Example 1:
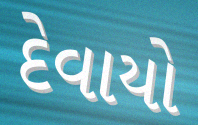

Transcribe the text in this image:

દેવાયો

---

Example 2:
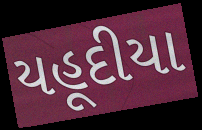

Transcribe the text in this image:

યહૂદીયા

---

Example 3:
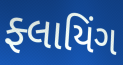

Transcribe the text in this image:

ફ્લાયિંગ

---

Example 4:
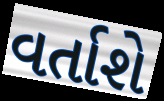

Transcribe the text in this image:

વર્તાશે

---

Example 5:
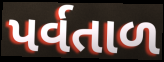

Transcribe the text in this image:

પર્વતાળ